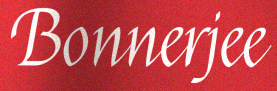
Bonnerjee